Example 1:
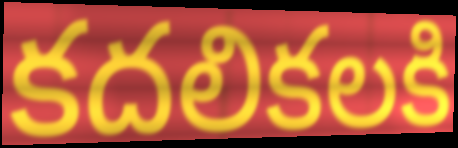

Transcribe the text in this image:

కదలికలకి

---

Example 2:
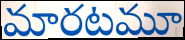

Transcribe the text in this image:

మారటమూ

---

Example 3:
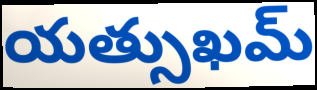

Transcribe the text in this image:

యత్సుఖమ్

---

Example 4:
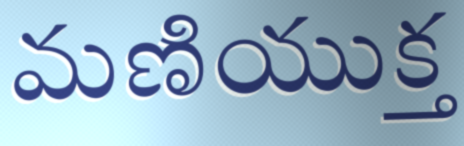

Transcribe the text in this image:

మణియుక్త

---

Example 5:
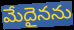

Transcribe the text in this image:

మేదైనను